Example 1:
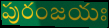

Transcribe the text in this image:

పురంజయః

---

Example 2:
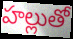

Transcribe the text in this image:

హల్లుతో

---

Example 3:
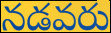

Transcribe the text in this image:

నడవరు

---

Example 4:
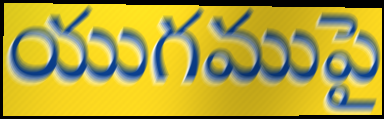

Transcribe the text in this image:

యుగముపై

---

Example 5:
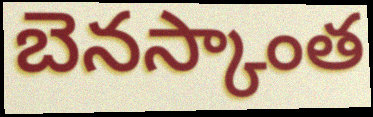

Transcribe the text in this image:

బెనస్కాంత